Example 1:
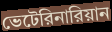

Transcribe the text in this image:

ভেটেরিনারিয়ান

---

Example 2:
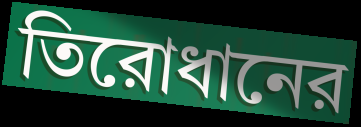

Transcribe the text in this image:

তিরোধানের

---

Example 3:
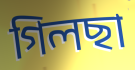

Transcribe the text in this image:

গিলছা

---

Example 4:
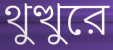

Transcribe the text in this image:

থুত্থুরে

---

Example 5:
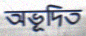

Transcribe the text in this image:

অভূদিত